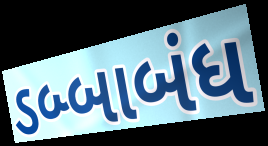
ડબ્બાબંધ